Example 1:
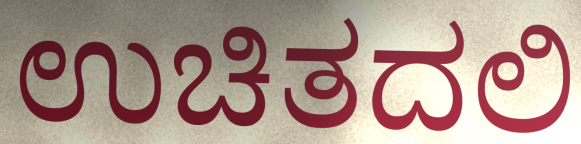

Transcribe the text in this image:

ಉಚಿತದಲಿ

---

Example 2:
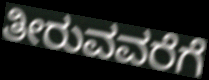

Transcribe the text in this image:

ತೀರುವವರೆಗೆ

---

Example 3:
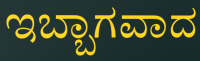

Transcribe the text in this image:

ಇಬ್ಬಾಗವಾದ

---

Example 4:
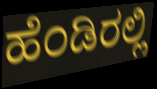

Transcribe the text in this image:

ಹೆಂಡಿರಲ್ಲಿ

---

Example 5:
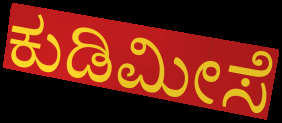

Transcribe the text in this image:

ಕುಡಿಮೀಸೆ